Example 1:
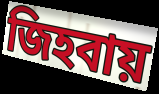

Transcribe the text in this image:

জিহবায়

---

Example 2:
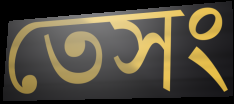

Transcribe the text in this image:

তেসং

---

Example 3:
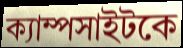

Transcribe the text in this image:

ক্যাম্পসাইটকে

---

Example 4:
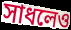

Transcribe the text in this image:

সাধলেও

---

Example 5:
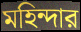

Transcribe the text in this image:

মহিন্দার